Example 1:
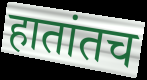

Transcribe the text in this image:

हातांतच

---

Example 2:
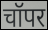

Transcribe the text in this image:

चॉपर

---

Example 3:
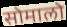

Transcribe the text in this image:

सोमालो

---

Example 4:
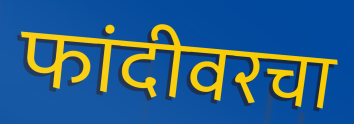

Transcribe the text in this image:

फांदीवरचा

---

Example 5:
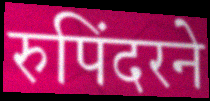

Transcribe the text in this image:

रुपिंदरने